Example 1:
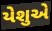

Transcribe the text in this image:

યેશુએ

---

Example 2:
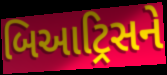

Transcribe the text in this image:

બિઆટ્રિસને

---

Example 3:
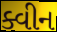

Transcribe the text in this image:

ક્વીન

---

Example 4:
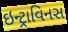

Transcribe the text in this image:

ઇન્ટ્રાવિનસ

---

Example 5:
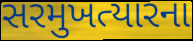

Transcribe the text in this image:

સરમુખત્યારના